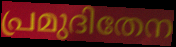
പ്രമുദിതേന